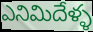
ఎనిమిదేళ్ళ